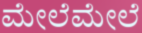
ಮೇಲೆಮೇಲೆ